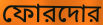
ফোরদোর